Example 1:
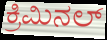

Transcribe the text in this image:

ಕ್ರಿಮಿನಲ್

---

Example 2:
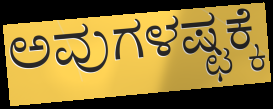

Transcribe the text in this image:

ಅವುಗಳಷ್ಟಕ್ಕೆ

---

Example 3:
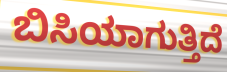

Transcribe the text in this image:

ಬಿಸಿಯಾಗುತ್ತಿದೆ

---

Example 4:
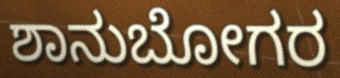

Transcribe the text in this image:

ಶಾನುಬೋಗರ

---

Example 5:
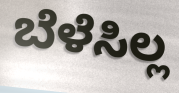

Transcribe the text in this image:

ಬೆಳೆಸಿಲ್ಲ